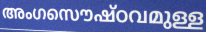
അംഗസൌഷ്ഠവമുള്ള